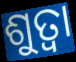
ଶୁତ୍ବା